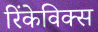
रिंकेविक्स